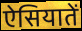
ऐसियातें